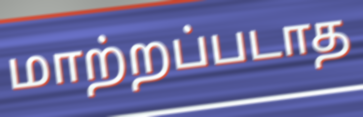
மாற்றப்படாத